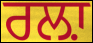
ਰਲ਼ਾ